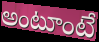
అంటూంటే